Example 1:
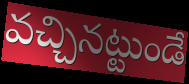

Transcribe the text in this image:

వచ్చినట్టుండే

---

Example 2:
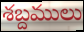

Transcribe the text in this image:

శబ్దములు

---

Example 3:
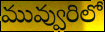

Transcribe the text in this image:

మువ్వురిలో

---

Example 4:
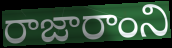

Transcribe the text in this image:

రాజారాంని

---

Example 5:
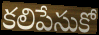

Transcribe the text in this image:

కలిపేసుకో